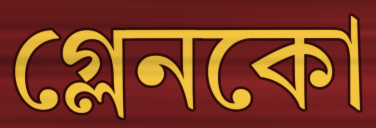
গ্লেনকো